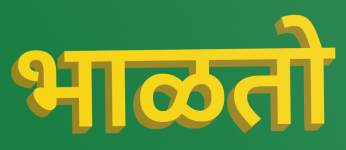
भाळतो